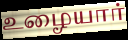
உழையார்